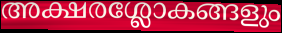
അക്ഷരശ്ലോകങ്ങളും